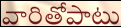
వారితోపాటు